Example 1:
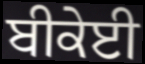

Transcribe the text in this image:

ਬੀਕੇਈ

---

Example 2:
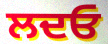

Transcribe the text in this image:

ਲਦਓ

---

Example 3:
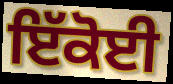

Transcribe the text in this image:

ਇੱਕੋਈ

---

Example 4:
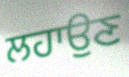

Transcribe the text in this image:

ਲਹਾਉਣ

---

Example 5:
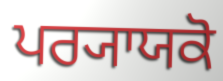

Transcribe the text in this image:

ਪਰ੍ਯਾਯਕੋ